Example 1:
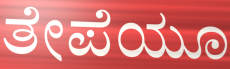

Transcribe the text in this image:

ತೇಪೆಯೂ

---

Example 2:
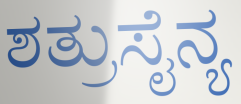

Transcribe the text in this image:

ಶತ್ರುಸೈನ್ಯ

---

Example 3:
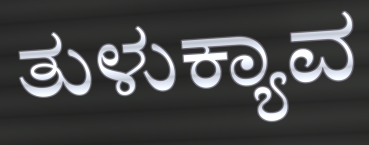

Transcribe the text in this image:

ತುಳುಕ್ಯಾವ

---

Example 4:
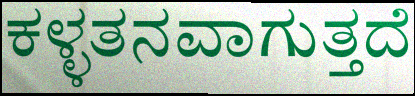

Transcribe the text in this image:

ಕಳ್ಳತನವಾಗುತ್ತದೆ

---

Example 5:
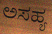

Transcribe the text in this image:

ಅಸಹ್ಯ